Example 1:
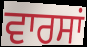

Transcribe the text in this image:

ਵਾਰਸਾਂ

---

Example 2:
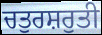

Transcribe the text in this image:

ਚਤੁਰਸ਼ਰੁਤੀ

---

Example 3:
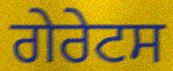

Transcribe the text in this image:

ਗੇਰੇਟਸ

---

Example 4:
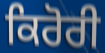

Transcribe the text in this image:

ਕਿਰੋਰੀ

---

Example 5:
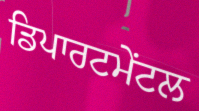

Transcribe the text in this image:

ਡਿਪਾਰਟਮੇਂਟਲ